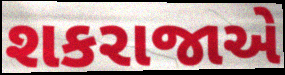
શકરાજાએ